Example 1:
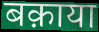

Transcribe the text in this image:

बक़ाया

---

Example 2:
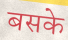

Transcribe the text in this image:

बसके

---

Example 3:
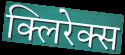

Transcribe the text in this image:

क्लिरेक्स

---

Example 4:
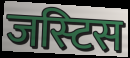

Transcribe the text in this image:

जस्‍टिस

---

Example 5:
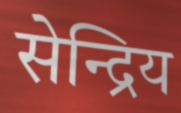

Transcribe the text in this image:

सेन्द्रिय